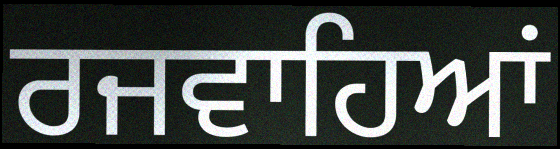
ਰਜਵਾਹਿਆਂ